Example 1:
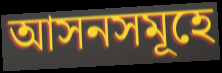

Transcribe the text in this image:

আসনসমূহে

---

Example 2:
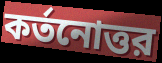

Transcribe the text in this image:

কর্তনোত্তর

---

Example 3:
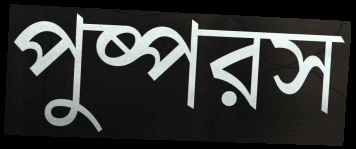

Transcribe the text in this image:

পুষ্পরস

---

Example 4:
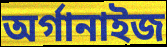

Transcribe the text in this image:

অর্গানাইজ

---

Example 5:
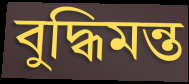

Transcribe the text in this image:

বুদ্ধিমন্ত